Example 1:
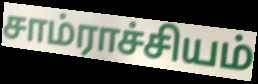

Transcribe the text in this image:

சாம்ராச்சியம்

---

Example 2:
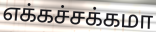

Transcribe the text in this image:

எக்கச்சக்கமா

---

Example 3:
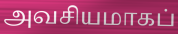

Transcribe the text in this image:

அவசியமாகப்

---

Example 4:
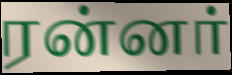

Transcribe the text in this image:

ரன்னர்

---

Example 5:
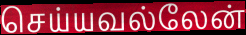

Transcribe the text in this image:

செய்யவல்லேன்